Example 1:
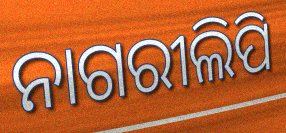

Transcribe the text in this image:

ନାଗରୀଲିପି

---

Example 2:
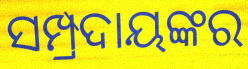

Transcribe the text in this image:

ସମ୍ପ୍ରଦାୟଙ୍କର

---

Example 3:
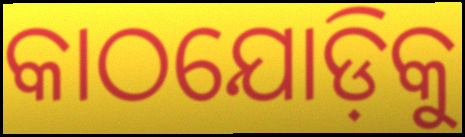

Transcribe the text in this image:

କାଠଯୋଡ଼ିକୁ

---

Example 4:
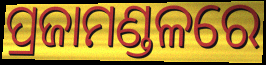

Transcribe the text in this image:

ପ୍ରଜାମଣ୍ଡଳରେ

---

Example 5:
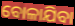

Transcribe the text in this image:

ବୋଳାଯିବା